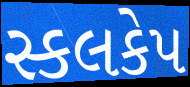
સ્કલકેપ